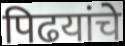
पिढयांचे